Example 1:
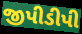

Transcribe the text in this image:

જીપીડીપી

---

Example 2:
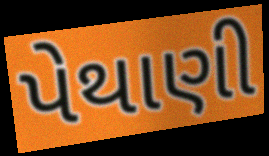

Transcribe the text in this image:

પેથાણી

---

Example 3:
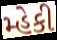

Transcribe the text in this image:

મ્હેકી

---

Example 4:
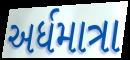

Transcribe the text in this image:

અર્ધમાત્રા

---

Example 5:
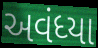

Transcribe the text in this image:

અવંધ્યા